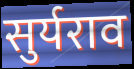
सुर्यराव